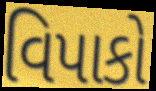
વિપાકો